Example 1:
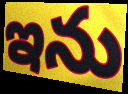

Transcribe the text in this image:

ఇను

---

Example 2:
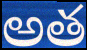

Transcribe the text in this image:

అత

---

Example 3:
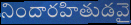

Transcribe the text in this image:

నిందారహితుడవై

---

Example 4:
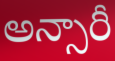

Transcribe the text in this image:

అన్సారీ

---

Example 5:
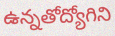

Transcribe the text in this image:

ఉన్నతోద్యోగిని